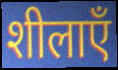
शीलाएँ